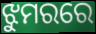
ଝୁମରରେ